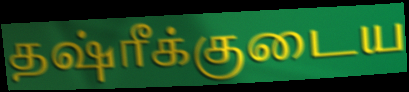
தஷ்ரீக்குடைய